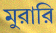
মুরারি